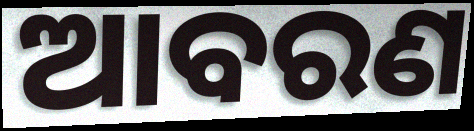
ଆବରଣ